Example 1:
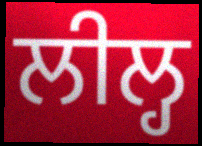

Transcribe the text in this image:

ਲੀਲ੍ਹ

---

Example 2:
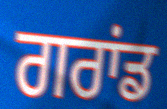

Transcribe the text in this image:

ਗਰਾਂਡ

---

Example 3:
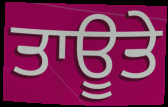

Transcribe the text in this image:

ਤਾਊਤੇ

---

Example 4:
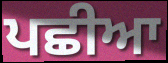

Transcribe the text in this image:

ਪਛੀਆ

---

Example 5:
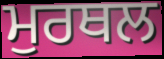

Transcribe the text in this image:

ਮੁਰਥਲ